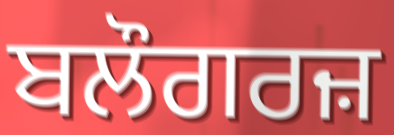
ਬਲੌਗਰਜ਼